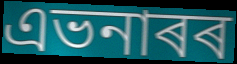
এভনাৰৰ